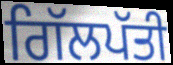
ਗਿੱਲਪੱਤੀ